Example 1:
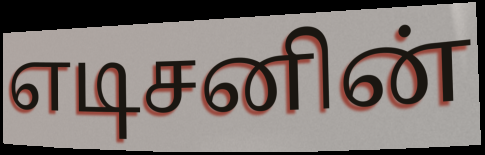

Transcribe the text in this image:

எடிசனின்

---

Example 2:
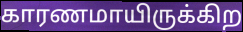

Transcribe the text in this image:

காரணமாயிருக்கிற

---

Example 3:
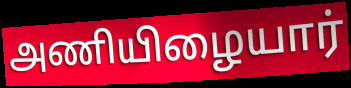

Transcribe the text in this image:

அணியிழையார்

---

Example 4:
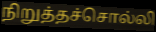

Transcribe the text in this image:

நிறுத்தச்சொல்லி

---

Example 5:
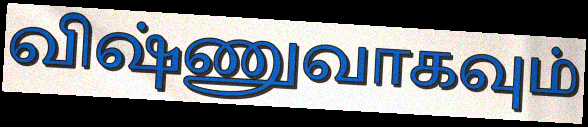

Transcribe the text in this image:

விஷ்ணுவாகவும்